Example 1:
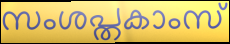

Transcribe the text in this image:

സംശപ്തകാംസ്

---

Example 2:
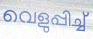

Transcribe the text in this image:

വെളുപ്പിച്ച്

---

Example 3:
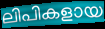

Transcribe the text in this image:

ലിപികളായ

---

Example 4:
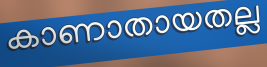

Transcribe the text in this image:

കാണാതായതല്ല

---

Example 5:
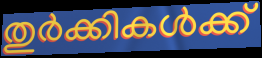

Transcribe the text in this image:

തുർക്കികൾക്ക്